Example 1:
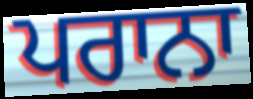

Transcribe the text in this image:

ਪਰਾਨਾ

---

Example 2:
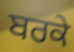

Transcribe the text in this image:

ਬਰਕੇ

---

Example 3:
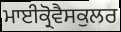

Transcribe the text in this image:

ਮਾਈਕ੍ਰੋਵੈਸਕੁਲਰ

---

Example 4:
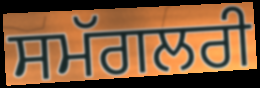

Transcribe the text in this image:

ਸਮੱਗਲਰੀ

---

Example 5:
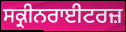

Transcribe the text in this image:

ਸਕ੍ਰੀਨਰਾਈਟਰਜ਼